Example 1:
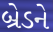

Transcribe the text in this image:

બ્રેડને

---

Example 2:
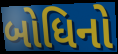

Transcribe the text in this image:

બોધિનો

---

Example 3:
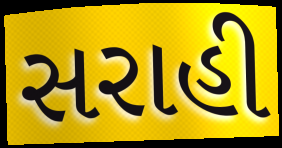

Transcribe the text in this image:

સરાહી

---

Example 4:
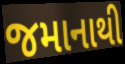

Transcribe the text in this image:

જમાનાથી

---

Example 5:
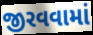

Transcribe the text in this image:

જીરવવામાં